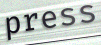
press